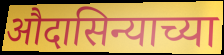
औदासिन्याच्या